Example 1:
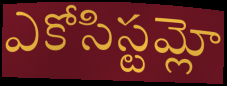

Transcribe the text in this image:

ఎకోసిస్టమ్లో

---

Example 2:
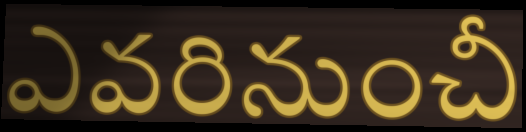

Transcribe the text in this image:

ఎవరినుంచీ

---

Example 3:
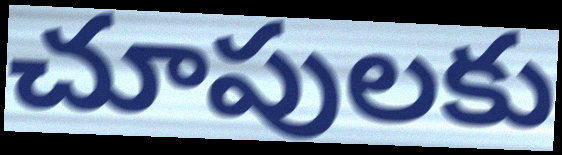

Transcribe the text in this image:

చూపులకు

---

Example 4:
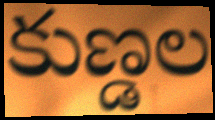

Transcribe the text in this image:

కుణ్డల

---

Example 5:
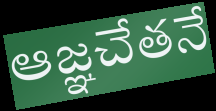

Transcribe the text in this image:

ఆజ్ఞచేతనే